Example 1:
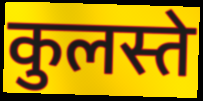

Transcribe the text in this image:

कुलस्ते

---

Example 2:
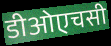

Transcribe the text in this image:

डीओएचसी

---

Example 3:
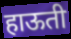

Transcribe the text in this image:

हाऊती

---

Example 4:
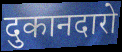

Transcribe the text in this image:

दुकानदारो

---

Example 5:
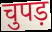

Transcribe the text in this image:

चुपड़